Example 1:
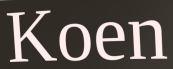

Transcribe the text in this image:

Koen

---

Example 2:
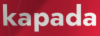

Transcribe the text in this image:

kapada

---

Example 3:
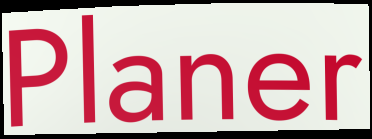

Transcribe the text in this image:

Planer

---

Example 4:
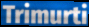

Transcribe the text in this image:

Trimurti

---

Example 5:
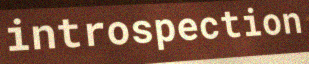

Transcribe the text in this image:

introspection